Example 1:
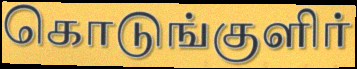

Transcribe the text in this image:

கொடுங்குளிர்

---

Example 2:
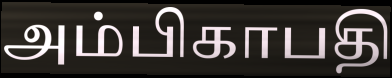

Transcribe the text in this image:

அம்பிகாபதி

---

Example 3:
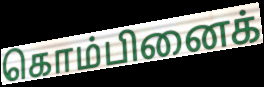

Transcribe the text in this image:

கொம்பினைக்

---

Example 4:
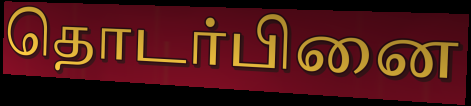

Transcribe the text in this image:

தொடர்பினை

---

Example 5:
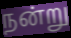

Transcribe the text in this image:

நன்று